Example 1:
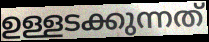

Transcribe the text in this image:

ഉള്ളടക്കുന്നത്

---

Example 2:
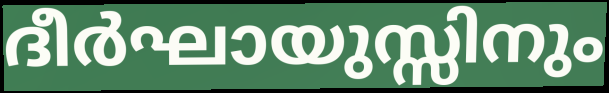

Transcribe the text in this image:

ദീർഘായുസ്സിനും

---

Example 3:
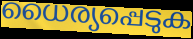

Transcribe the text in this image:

ധൈര്യപ്പെടുക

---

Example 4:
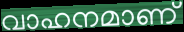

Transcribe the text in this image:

വാഹനമാണ്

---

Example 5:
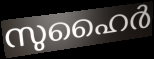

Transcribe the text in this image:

സുഹൈർ